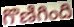
గొణిగింది